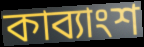
কাব্যাংশ